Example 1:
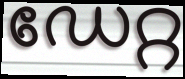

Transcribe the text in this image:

ഡേറ്റ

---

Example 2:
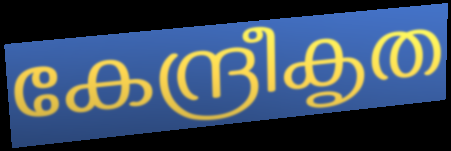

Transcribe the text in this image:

കേന്ദ്രീകൃത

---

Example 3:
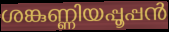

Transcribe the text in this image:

ശങ്കുണ്ണിയപ്പൂപ്പൻ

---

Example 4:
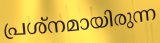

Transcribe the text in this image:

പ്രശ്നമായിരുന്ന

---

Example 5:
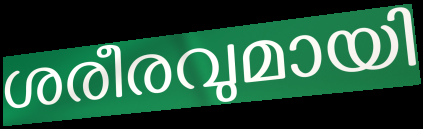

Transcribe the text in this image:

ശരീരവുമായി